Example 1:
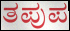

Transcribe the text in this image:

ತಪುಪ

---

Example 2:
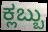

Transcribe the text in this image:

ಕ್ಲಬ್ಬು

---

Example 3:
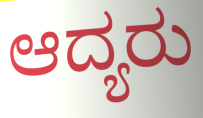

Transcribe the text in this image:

ಆದ್ಯರು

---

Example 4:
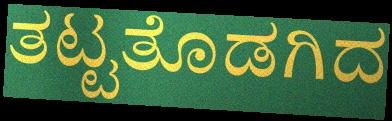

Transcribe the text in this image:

ತಟ್ಟತೊಡಗಿದ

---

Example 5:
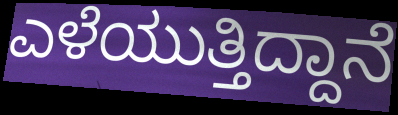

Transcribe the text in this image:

ಎಳೆಯುತ್ತಿದ್ದಾನೆ